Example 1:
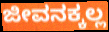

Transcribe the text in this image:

ಜೀವನಕ್ಕಲ್ಲ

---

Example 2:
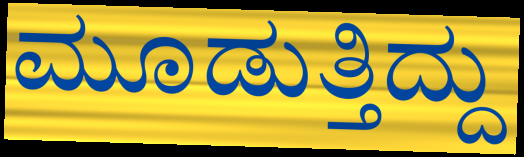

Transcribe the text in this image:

ಮೂಡುತ್ತಿದ್ದು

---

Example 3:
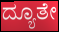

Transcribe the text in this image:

ದ್ಯೂತೇ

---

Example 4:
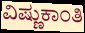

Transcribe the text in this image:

ವಿಷ್ಣುಕಾಂತಿ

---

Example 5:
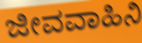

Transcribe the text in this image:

ಜೀವವಾಹಿನಿ